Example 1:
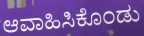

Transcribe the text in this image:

ಆವಾಹಿಸಿಕೊಂಡು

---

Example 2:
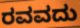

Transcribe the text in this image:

ರವವದು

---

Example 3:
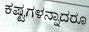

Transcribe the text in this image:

ಕಷ್ಟಗಳನ್ನಾದರೂ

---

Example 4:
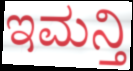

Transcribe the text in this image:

ಇಮನ್ತಿ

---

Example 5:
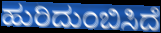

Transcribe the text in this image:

ಹುರಿದುಂಬಿಸಿದೆ